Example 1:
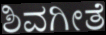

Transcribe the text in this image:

ಶಿವಗೀತೆ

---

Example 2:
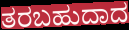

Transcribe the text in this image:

ತರಬಹುದಾದ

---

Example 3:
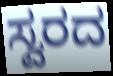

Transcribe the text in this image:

ಸ್ವರದ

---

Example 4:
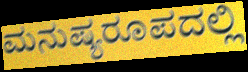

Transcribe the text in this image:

ಮನುಷ್ಯರೂಪದಲ್ಲಿ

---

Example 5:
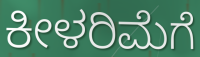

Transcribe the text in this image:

ಕೀಳರಿಮೆಗೆ